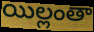
యిల్లంతా